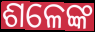
ଶଳେଙ୍କ